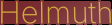
Helmuth